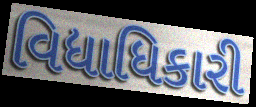
વિદ્યાધિકારી